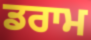
ਡਰਾਮ